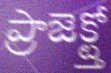
ప్రాజెక్ట్తో